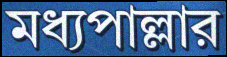
মধ্যপাল্লার